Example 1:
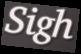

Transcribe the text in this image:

Sigh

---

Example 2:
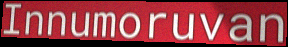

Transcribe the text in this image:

Innumoruvan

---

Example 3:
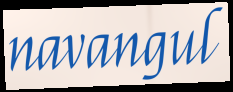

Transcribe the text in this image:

navangul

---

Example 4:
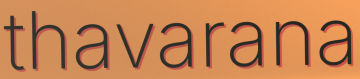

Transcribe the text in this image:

thavarana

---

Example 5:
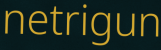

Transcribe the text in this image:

netrigun